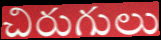
చిరుగులు